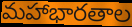
మహాభారతాల